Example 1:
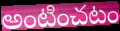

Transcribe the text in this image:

అంటించటం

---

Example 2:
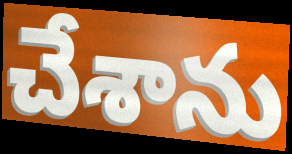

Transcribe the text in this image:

చేశాను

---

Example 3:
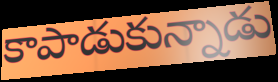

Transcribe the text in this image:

కాపాడుకున్నాడు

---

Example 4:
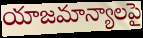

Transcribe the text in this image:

యాజమాన్యాలపై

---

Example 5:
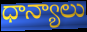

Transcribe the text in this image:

ధాన్యాలు